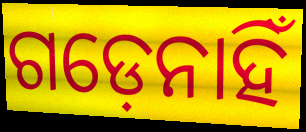
ଗଡ଼େନାହିଁ